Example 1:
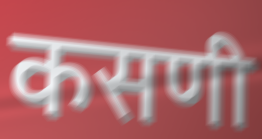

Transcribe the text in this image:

कसणी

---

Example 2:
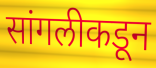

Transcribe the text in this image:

सांगलीकडून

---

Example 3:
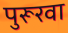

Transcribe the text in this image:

पुरूरवा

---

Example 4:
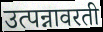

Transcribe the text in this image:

उत्पन्नावरती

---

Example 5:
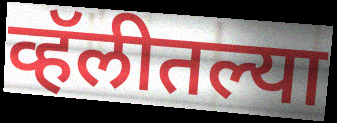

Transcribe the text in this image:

व्हॅलीतल्या